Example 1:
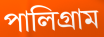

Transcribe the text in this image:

পালিগ্রাম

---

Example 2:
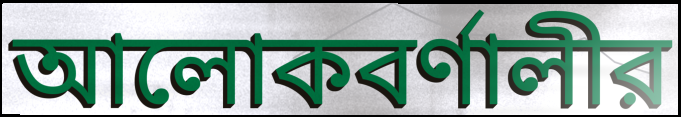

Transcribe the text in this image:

আলোকবর্ণালীর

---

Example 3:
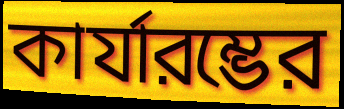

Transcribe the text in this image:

কার্যারম্ভের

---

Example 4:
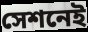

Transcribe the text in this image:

সেশনেই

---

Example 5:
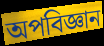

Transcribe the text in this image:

অপবিজ্ঞান